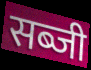
सब्जी